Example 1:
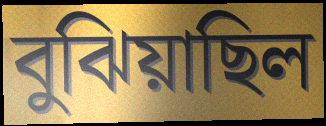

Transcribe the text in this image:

বুঝিয়াছিল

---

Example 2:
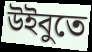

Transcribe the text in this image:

উইবুতে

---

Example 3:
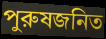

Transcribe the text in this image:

পুরুষজনিত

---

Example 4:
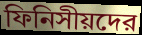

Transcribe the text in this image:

ফিনিসীয়দের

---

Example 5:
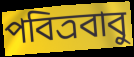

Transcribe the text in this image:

পবিত্রবাবু